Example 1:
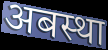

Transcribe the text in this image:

अबस्था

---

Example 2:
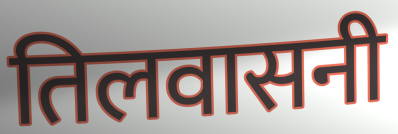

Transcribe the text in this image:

तिलवासनी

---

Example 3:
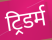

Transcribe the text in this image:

ट्रिडर्म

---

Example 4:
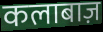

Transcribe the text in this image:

कलाबाज़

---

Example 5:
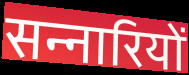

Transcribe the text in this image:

सन्नारियों